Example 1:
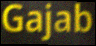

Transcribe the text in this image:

Gajab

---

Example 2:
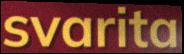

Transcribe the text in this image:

svarita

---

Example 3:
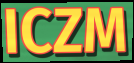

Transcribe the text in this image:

ICZM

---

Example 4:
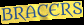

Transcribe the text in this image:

BRACERS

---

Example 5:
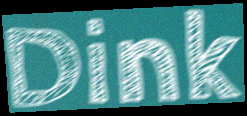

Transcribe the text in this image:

Dink